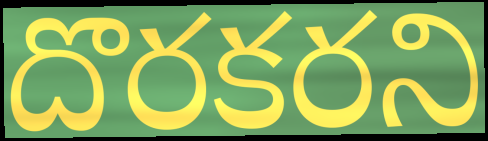
దొరకరని